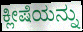
ಕ್ಲೀಷೆಯನ್ನು